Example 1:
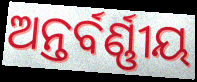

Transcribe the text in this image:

ଅନ୍ତର୍ବର୍ଣ୍ଣୀୟ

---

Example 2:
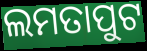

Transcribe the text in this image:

ଲମତାପୁଟ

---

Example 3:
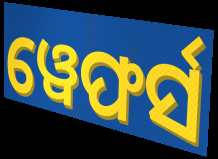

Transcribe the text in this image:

ୱେଫର୍ସ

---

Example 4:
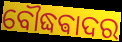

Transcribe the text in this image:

ବୌଦ୍ଧଵାଦର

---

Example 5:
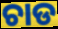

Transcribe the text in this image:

ଚାଡ